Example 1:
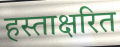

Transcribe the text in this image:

हस्ताक्षरित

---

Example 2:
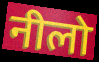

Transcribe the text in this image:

नीलो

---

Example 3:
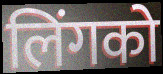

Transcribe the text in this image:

लिंगको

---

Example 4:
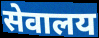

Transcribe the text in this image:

सेवालय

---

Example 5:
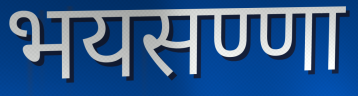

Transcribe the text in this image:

भयसण्णा